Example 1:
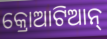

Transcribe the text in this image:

କ୍ରୋଆଟିଆନ୍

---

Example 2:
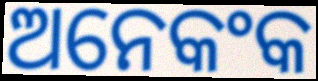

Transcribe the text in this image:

ଅନେକଂକ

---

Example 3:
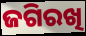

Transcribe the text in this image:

ଜଗିରଖି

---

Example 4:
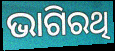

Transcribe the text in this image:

ଭାଗିରଥି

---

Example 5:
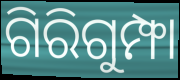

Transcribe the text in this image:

ଗିରିଗୁମ୍ଫା